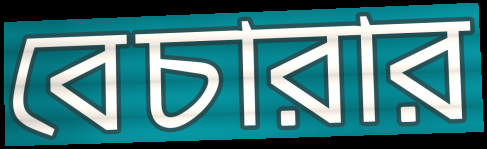
বেচারার